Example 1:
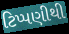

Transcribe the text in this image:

ટિપ્પણીથી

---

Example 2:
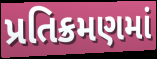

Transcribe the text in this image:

પ્રતિક્રમણમાં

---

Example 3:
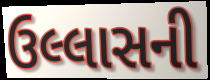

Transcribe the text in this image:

ઉલ્લાસની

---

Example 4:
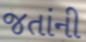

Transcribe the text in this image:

જતાંની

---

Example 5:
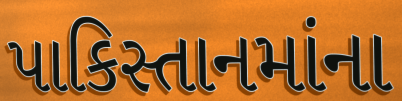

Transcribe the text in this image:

પાકિસ્તાનમાંના